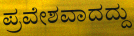
ಪ್ರವೇಶವಾದದ್ದು